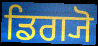
ਡਿਗ੍ਯੋ